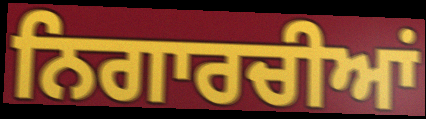
ਨਿਗਾਰਚੀਆਂ